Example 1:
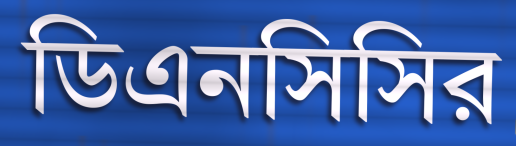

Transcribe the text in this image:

ডিএনসিসির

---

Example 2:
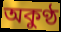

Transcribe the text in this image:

অকুণ্ঠ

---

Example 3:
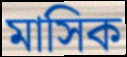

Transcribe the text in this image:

মাসিক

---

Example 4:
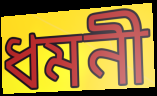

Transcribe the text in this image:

ধমনী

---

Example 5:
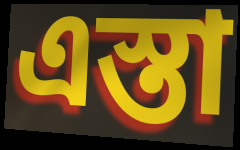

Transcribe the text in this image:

এস্তা